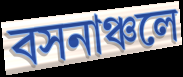
বসনাঞ্চলে